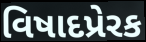
વિષાદપ્રેરક